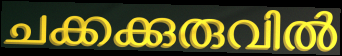
ചക്കക്കുരുവിൽ